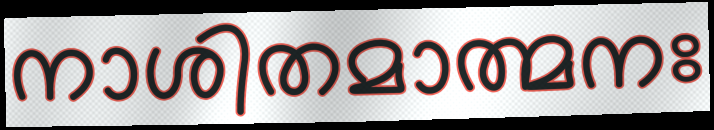
നാശിതമാത്മനഃ